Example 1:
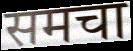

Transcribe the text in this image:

समचा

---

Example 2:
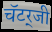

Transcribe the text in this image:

चॅटर्जी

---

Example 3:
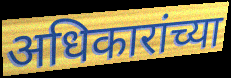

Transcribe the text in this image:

अधिकारांच्या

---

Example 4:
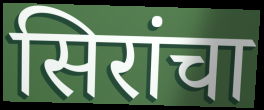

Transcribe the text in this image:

सिरांचा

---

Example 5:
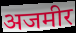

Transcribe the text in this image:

अजमीर